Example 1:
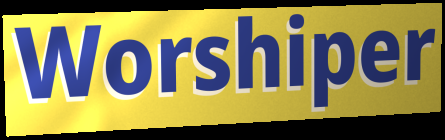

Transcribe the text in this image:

Worshiper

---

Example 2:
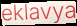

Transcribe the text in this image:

eklavya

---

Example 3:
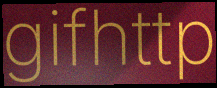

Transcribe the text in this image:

gifhttp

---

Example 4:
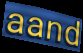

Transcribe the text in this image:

aand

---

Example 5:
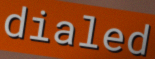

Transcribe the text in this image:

dialed